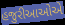
હજુરીઆઓએ